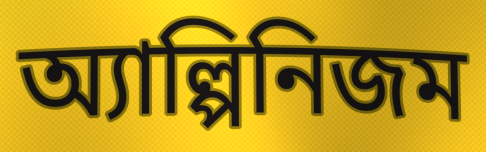
অ্যাল্পিনিজম